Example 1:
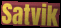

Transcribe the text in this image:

Satvik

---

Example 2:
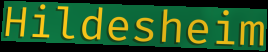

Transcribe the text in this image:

Hildesheim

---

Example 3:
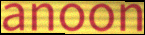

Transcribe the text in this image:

anoon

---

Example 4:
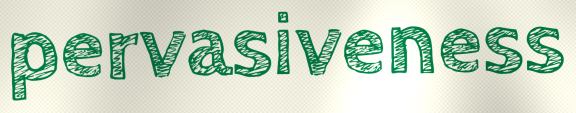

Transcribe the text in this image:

pervasiveness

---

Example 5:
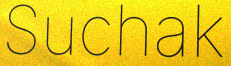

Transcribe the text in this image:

Suchak